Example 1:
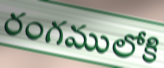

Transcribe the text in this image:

రంగములోకి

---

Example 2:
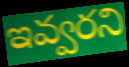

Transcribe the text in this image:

ఇవ్వరని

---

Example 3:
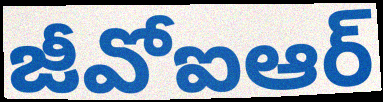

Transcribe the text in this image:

జీవోఐఆర్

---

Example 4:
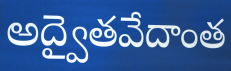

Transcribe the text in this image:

అద్వైతవేదాంత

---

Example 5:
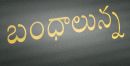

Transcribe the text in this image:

బంధాలున్న